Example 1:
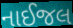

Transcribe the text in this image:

નાઈજલ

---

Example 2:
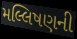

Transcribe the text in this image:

મલ્લિષણની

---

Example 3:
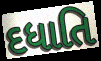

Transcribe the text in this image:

દધાતિ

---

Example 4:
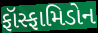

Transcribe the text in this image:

ફૉસ્ફામિડોન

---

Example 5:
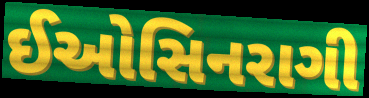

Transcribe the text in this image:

ઈઓસિનરાગી